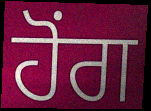
ਹੋੰਗ